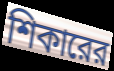
শিকারের